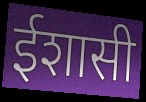
ईशासी